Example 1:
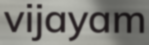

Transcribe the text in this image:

vijayam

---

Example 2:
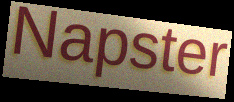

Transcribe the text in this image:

Napster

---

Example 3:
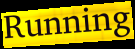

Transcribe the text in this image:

Running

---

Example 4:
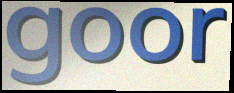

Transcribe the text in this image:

goor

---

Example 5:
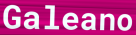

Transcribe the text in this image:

Galeano